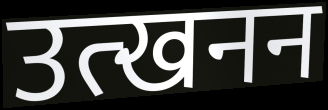
उत्‍खनन